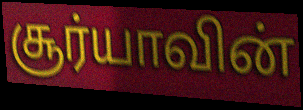
சூர்யாவின்